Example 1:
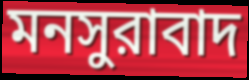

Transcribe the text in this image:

মনসুরাবাদ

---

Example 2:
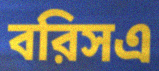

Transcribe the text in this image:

বরিসএ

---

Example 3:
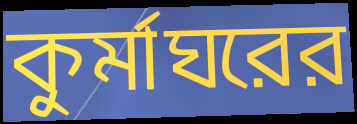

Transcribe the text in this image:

কুর্মাঘরের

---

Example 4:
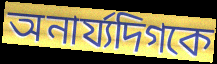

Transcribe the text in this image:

অনার্য্যদিগকে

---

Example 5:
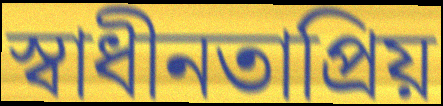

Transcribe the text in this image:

স্বাধীনতাপ্রিয়